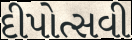
દીપોત્સવી